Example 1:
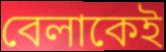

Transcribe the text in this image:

বেলাকেই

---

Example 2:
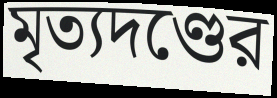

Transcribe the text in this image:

মৃত্যদণ্ডের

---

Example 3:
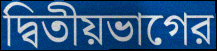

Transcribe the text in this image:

দ্বিতীয়ভাগের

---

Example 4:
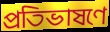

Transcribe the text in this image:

প্রতিভাষণে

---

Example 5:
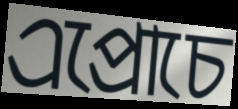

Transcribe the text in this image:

এপ্রোচে